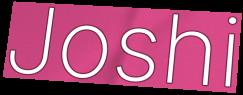
Joshi